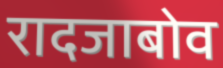
रादजाबोव